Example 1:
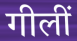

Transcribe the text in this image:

गीलीं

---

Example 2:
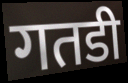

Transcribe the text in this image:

गतडी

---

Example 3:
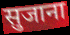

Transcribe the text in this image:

सुजाना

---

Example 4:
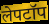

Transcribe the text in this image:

लेपटॉप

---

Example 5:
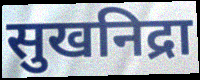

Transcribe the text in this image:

सुखनिद्रा